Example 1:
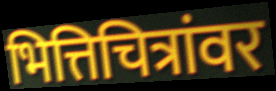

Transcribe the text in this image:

भित्तिचित्रांवर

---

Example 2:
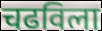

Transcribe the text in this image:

चढविला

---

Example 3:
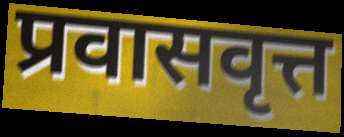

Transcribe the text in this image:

प्रवासवृत्त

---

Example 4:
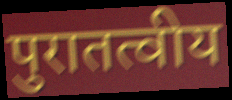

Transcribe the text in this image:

पुरातत्वीय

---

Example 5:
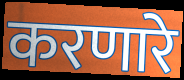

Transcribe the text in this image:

करणारे